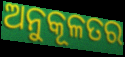
ଅନୁକୂଳତର